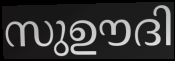
സുഊദി